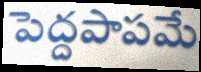
పెద్దపాపమే